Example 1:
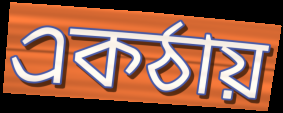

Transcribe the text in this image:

একঠায়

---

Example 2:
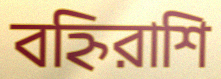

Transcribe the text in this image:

বহ্নিরাশি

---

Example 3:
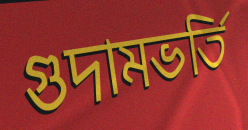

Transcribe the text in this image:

গুদামভর্তি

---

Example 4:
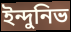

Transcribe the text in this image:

ইন্দুনিভ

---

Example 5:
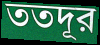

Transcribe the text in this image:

ততদূর